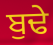
ਬੁਢੇ